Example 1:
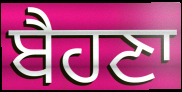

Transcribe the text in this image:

ਬੈਹਣਾ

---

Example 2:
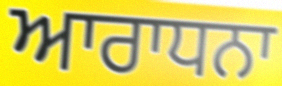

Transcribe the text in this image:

ਆਰਾਧਨਾ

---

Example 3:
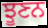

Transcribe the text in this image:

ਝੂਣਨ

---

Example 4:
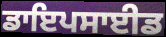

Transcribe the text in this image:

ਡਾਇਪਸਾਈਡ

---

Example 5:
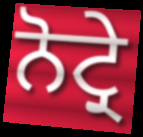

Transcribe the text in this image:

ਨੋਟ੍ਰੇ